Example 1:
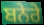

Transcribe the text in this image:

ਬਨੇਰੇ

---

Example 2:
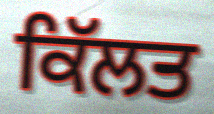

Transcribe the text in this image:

ਕਿੱਲਤ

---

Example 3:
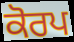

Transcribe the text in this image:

ਕੋਰਪ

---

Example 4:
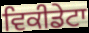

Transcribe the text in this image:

ਵਿਕੀਡੇਟਾ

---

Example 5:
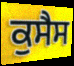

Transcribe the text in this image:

ਕੁਸੈਸ